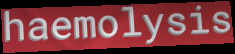
haemolysis